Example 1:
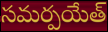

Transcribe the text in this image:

సమర్పయేత్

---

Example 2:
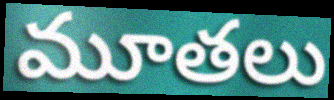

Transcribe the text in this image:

మూతలు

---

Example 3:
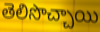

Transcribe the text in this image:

తెలిసొచ్చాయి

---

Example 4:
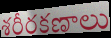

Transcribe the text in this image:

శరీరకణాలు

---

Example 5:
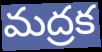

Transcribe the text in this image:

మద్రక